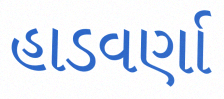
હાડવર્ણા